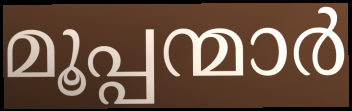
മൂപ്പന്മാർ